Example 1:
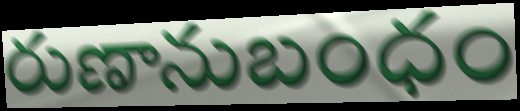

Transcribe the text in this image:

రుణానుబంధం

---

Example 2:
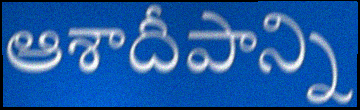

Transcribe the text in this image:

ఆశాదీపాన్ని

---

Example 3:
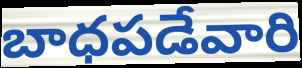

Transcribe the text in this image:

బాధపడేవారి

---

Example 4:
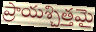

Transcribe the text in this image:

ప్రాయశ్చిత్తమై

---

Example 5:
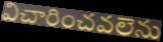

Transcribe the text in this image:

విచారించవలెను